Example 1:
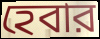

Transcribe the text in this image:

হেবার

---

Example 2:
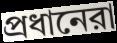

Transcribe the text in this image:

প্রধানেরা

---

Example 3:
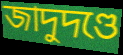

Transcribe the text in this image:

জাদুদণ্ডে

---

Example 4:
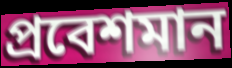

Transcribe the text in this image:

প্রবেশমান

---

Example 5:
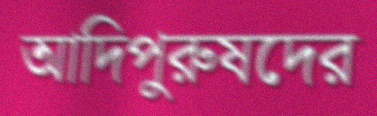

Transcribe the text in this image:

আদিপুরুষদের